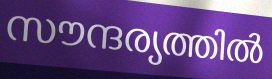
സൗന്ദര്യത്തിൽ